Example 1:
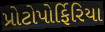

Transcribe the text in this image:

પ્રોટોપોર્ફિરિયા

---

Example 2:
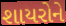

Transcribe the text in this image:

શાયરોને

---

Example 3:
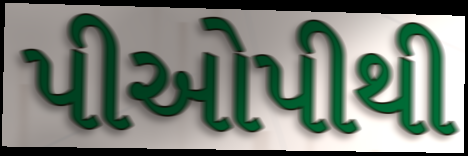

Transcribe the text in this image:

પીઓપીથી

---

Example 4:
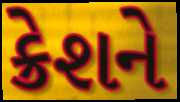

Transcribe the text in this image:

ક્રેશને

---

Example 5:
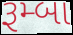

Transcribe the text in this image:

રૂમ્બા